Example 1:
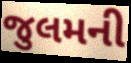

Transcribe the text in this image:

જુલમની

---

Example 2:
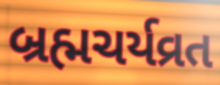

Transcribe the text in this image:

બ્રહ્મચર્યવ્રત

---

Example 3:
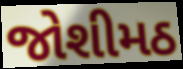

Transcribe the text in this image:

જોશીમઠ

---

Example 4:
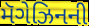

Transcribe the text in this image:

મૅગેઝિનની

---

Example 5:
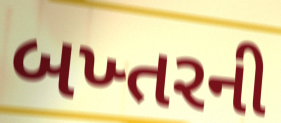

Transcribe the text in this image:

બખ્તરની